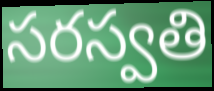
సరస్వతి